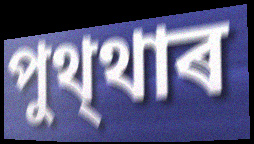
পুথ্থাৰ